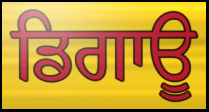
ਡਿਗਾਊ